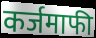
कर्जमाफी